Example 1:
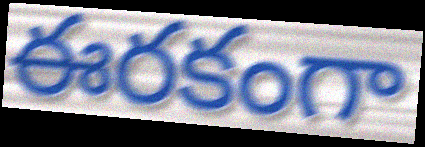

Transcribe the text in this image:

ఈరకంగా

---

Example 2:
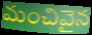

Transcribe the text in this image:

మంచివైన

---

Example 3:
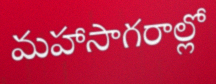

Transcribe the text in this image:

మహాసాగరాల్లో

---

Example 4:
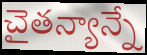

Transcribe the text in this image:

చైతన్యాన్నే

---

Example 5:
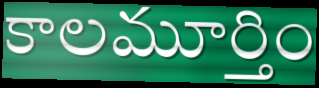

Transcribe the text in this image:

కాలమూర్తిం